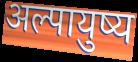
अल्पायुष्य